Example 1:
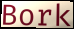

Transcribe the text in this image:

Bork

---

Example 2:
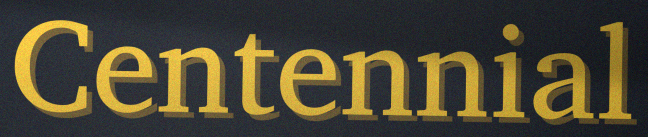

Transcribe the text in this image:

Centennial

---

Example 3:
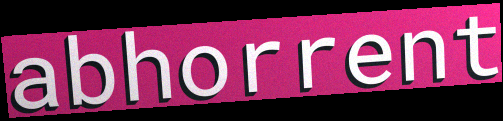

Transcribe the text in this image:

abhorrent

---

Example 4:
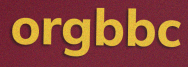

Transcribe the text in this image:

orgbbc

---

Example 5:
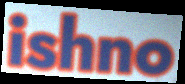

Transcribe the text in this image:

ishno